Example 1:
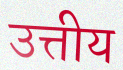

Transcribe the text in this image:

उत्तीय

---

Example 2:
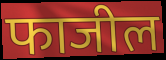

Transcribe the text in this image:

फाजील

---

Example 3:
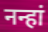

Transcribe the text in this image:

नन्हां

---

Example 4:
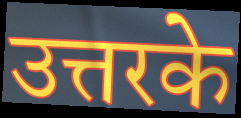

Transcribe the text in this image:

उत्तरके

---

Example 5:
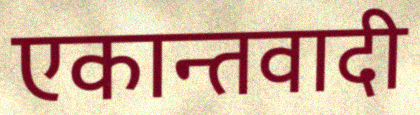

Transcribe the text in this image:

एकान्तवादी